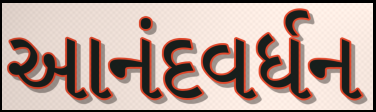
આનંદવર્ધન